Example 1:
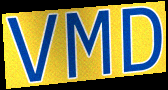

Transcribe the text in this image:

VMD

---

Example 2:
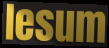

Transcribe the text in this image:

Iesum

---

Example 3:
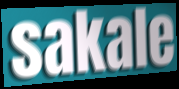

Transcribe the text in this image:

sakale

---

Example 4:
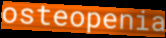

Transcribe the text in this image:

osteopenia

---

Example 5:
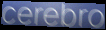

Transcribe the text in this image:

cerebro